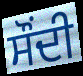
ਸੌਂਦੀ